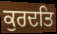
ਕੁਰਦਤਿ